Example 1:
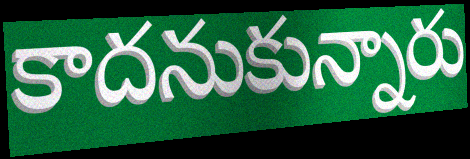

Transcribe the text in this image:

కాదనుకున్నారు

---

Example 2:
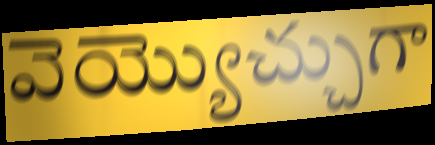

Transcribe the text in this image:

వెయ్యొచ్చుగా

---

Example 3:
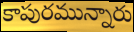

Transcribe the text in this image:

కాపురమున్నారు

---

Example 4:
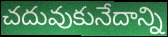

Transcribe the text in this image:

చదువుకునేదాన్ని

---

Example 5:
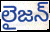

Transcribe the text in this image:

లైజన్